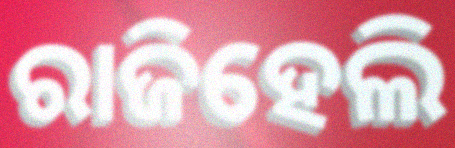
ରାଜିହେଲି